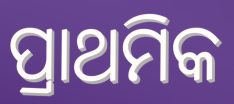
ପ୍ରାଥମିକ